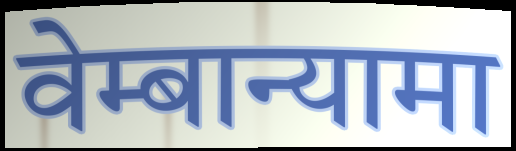
वेम्बान्यामा